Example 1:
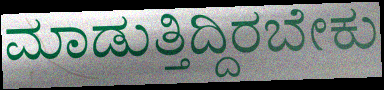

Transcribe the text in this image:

ಮಾಡುತ್ತಿದ್ದಿರಬೇಕು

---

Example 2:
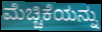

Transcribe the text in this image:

ಮೆಚ್ಚಿಕೆಯನ್ನು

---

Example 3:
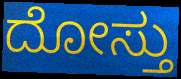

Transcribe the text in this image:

ದೋಸ್ತು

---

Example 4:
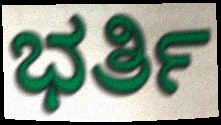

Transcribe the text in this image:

ಭರ್ತಿ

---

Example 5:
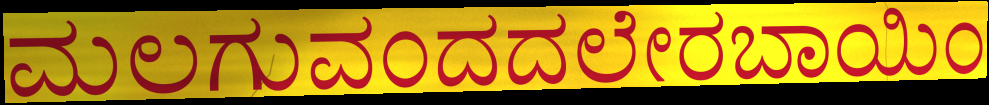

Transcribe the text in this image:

ಮಲಗುವಂದದಲೇರಬಾಯಿಂ